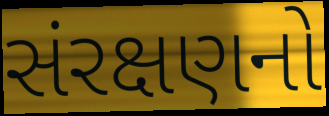
સંરક્ષણનો